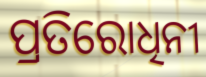
ପ୍ରତିରୋଧିନୀ